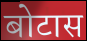
बोटास